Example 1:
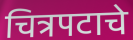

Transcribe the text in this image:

चित्रपटाचे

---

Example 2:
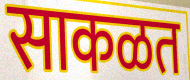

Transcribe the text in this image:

साकळत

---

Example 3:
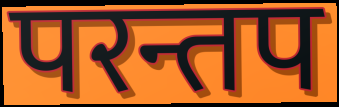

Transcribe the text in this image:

परन्तप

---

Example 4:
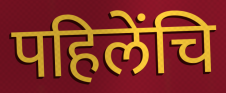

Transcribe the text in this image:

पहिलेंचि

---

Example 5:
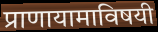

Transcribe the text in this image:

प्राणायामाविषयी